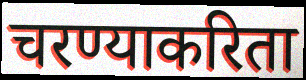
चरण्याकरिता